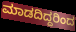
ಮಾಡದಿದ್ದರಿಂದ